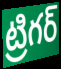
ట్రిగర్